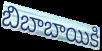
బిబాబాయికి